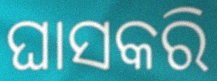
ଘାସକରି